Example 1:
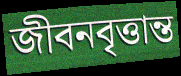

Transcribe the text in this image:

জীবনবৃত্তান্ত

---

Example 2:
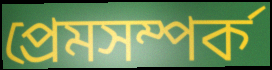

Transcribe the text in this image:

প্রেমসম্পর্ক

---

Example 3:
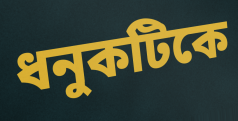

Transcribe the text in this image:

ধনুকটিকে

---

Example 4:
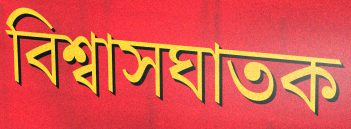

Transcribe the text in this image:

বিশ্বাসঘাতক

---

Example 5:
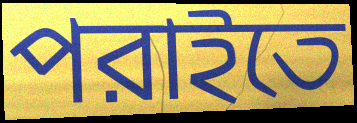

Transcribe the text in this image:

পরাইতে